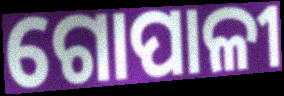
ଗୋପାଳୀ